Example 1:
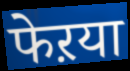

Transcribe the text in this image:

फेऱया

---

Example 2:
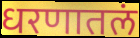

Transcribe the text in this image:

धरणातलं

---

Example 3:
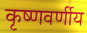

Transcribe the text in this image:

कृष्णवर्णीय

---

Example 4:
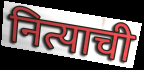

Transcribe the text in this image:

नित्याची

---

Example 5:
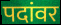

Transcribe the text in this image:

पदांवर